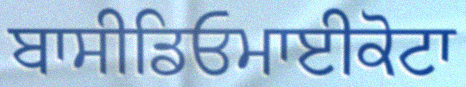
ਬਾਸੀਡਿਓਮਾਈਕੋਟਾ